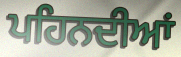
ਪਹਿਨਦੀਆਂ